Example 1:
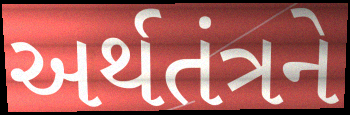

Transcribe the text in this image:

અર્થતંત્રને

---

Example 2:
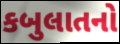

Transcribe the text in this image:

કબુલાતનો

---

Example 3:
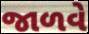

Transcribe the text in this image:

જાળવે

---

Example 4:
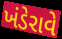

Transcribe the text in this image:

ખંડેરાવે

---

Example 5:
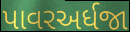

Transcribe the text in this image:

પાવરઅર્ધજા